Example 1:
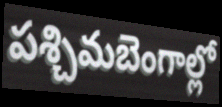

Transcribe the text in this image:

పశ్చిమబెంగాల్లో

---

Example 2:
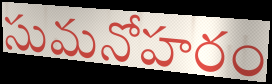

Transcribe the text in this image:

సుమనోహరం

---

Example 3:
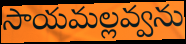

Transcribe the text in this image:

సాయమల్లవ్వను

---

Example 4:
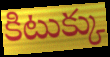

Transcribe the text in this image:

కిటుక్కు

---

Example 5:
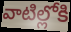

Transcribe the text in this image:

వాటిల్లోకి